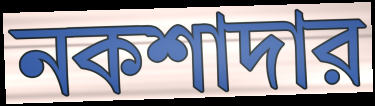
নকশাদার